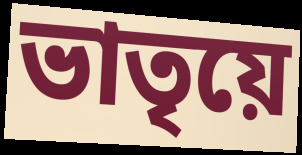
ভাতৃয়ে